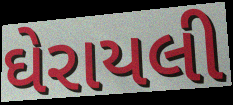
ઘેરાયલી